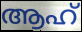
ആഹ്